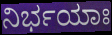
ನಿರ್ಭಯಾಃ